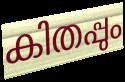
കിതപ്പും